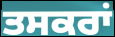
ਤਸਕਰਾਂ